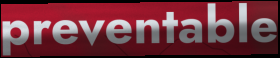
preventable